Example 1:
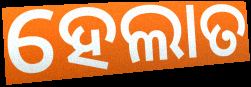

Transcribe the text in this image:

ହେଲାତ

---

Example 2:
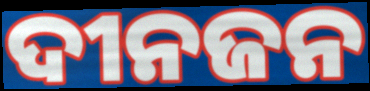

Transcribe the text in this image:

ଦୀନଜନ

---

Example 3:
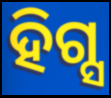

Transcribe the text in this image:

ହିଗ୍ସ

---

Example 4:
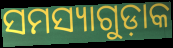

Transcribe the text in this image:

ସମସ୍ୟାଗୁଡ଼ାକ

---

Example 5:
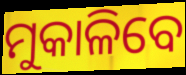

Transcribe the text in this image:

ମୁକାଳିବେ